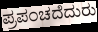
ಪ್ರಪಂಚದೆದುರು